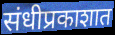
संधीप्रकाशात